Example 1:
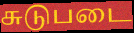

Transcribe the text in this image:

சுடுபடை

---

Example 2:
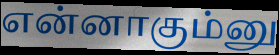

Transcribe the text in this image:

என்னாகும்னு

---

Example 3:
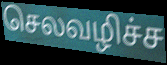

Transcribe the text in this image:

செலவழிச்ச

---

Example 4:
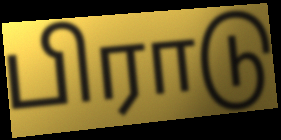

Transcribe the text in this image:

பிராடு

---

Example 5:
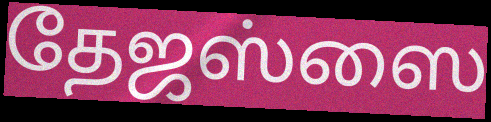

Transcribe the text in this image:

தேஜஸ்ஸை